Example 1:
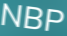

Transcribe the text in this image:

NBP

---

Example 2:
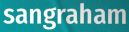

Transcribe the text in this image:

sangraham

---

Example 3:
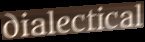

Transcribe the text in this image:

dialectical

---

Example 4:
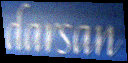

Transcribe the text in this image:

darsan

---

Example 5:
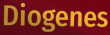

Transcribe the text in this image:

Diogenes